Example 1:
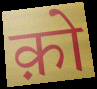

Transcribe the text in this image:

क़ो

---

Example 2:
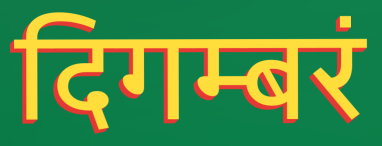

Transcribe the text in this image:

दिगम्बरं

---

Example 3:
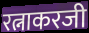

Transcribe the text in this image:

रत्नाकरजी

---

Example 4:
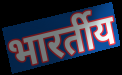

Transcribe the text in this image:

भारर्तीय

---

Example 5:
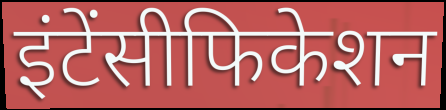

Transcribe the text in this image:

इंटेंसीफिकेशन